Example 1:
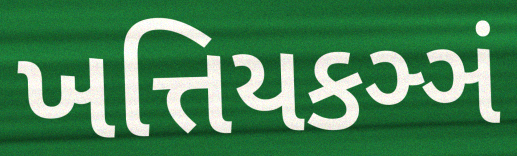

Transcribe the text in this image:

ખત્તિયકઞ્ઞં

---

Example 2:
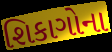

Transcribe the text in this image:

શિકાગોના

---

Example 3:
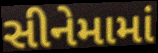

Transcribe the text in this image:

સીનેમામાં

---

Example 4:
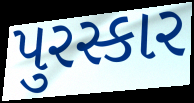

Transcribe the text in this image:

પુરસ્કાર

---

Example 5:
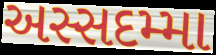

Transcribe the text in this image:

અસ્સદમ્મા